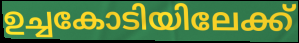
ഉച്ചകോടിയിലേക്ക്